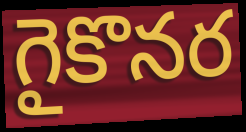
గైకొనర